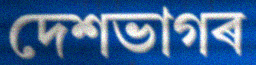
দেশভাগৰ